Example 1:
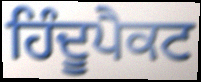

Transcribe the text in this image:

ਹਿੰਦੂਪੈਕਟ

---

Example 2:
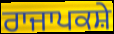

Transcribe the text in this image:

ਰਾਜਾਪਕਸ਼ੇ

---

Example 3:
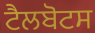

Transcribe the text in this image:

ਟੈਲਬੋਟਸ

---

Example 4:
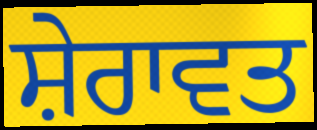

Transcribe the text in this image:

ਸ਼ੇਰਾਵਤ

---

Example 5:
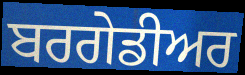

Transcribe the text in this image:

ਬਰਗੇਡੀਅਰ